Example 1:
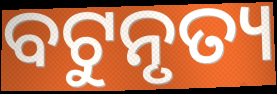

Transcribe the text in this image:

ବଟୁନୃତ୍ୟ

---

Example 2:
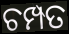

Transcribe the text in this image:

ଚମ୍ପତ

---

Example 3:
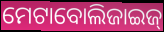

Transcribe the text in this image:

ମେଟାବୋଲିଜାଇଜ୍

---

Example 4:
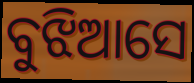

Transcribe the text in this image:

ବୁଝିଆସେ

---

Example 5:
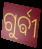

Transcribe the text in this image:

ଗୁର୍ଵୀ